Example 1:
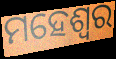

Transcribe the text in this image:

ମହେଶ୍ଵର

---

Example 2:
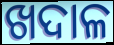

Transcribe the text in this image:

ଖଦାଳ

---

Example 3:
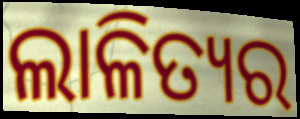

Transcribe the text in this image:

ଲାଳିତ୍ୟର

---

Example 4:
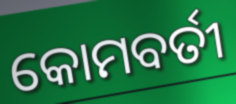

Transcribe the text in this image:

କୋମବର୍ତୀ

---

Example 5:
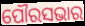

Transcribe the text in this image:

ପୌରସଭାର